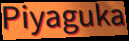
Piyaguka